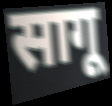
सागू